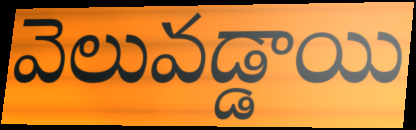
వెలువడ్డాయి